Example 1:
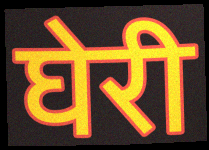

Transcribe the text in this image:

घेरी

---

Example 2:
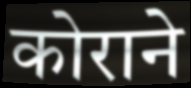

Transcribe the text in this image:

कोराने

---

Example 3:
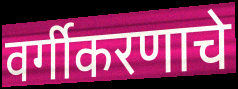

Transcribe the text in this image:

वर्गीकरणाचे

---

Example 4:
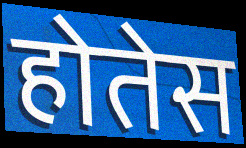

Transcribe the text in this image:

होतेस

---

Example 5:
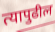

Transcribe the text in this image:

त्यापुढील